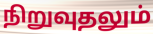
நிறுவுதலும்